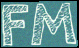
FM